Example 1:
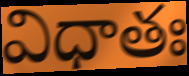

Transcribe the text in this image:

విధాతః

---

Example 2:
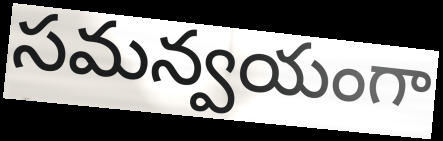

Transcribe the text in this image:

సమన్వయంగా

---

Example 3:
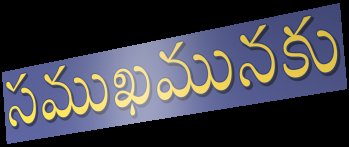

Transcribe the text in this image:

సముఖమునకు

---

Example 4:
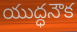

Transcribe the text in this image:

యుద్ధనౌక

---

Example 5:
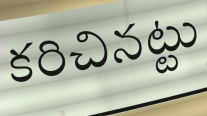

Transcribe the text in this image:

కరిచినట్టు